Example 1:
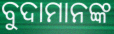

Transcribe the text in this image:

ବୁଦାମାନଙ୍କ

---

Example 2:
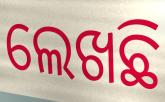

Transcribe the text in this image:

ଲେଖଛି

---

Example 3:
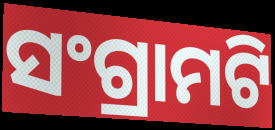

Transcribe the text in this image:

ସଂଗ୍ରାମଟି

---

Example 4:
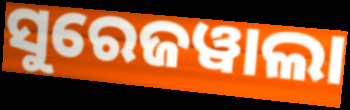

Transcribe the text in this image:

ସୁରେଜୱାଲା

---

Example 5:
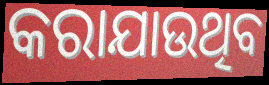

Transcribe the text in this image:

କରାଯାଉଥିବ